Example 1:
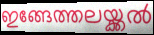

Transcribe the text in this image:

ഇങ്ങേത്തലയ്ക്കൽ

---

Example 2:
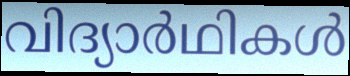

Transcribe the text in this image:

വിദ്യാർഥികൾ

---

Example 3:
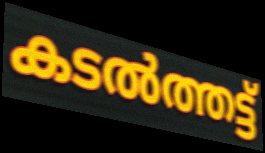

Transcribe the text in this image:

കടൽത്തട്ട്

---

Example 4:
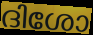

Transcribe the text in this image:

ദിശോ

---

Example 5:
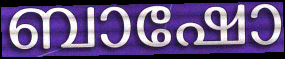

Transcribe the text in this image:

ബാഷോ